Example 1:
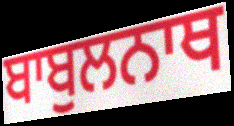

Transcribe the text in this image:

ਬਾਬੁਲਨਾਥ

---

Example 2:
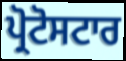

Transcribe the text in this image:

ਪ੍ਰੋਟੋਸਟਾਰ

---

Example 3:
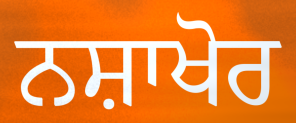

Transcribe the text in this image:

ਨਸ਼ਾਖੋਰ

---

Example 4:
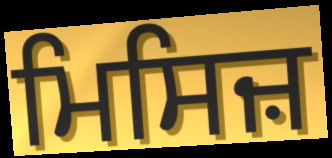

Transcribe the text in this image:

ਮਿਸਿਜ਼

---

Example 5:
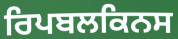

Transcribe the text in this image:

ਰਿਪਬਲਕਿਨਸ